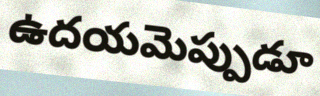
ఉదయమెప్పుడూ